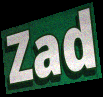
Zad